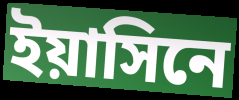
ইয়াসিনে